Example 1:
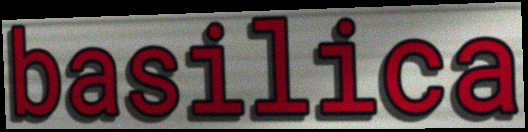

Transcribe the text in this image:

basilica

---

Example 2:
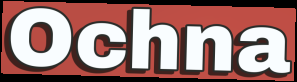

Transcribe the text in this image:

Ochna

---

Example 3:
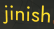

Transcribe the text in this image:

jinish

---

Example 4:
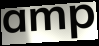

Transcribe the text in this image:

amp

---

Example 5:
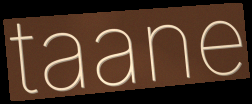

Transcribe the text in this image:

taane